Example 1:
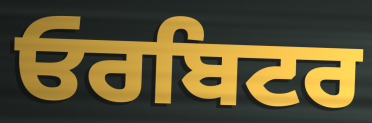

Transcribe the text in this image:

ਓਰਬਿਟਰ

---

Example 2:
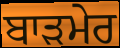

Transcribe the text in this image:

ਬਾੜਮੇਰ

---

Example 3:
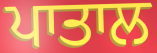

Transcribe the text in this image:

ਪਾਤਾਲ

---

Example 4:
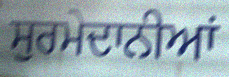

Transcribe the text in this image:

ਸੁਰਮੇਦਾਨੀਆਂ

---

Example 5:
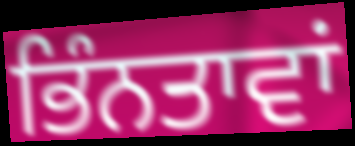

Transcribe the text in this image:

ਭਿੰਨਤਾਵਾਂ